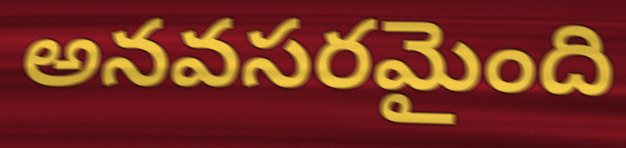
అనవసరమైంది